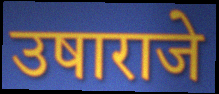
उषाराजे